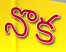
నొక